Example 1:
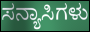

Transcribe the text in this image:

ಸನ್ಯಾಸಿಗಳು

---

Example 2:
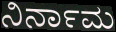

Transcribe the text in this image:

ನಿರ್ನಾಮ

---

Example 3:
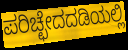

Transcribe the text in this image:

ಪರಿಚ್ಛೇದದಡಿಯಲ್ಲಿ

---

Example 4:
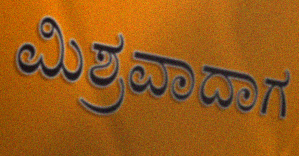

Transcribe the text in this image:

ಮಿಶ್ರವಾದಾಗ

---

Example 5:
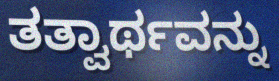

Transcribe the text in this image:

ತತ್ವಾರ್ಥವನ್ನು